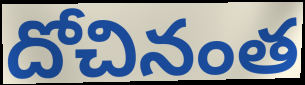
దోచినంత